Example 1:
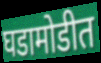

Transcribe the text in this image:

घडामोडीत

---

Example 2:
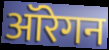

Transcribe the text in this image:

ऑरेगन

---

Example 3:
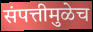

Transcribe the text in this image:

संपत्तीमुळेच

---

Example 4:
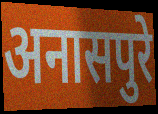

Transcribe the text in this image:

अनासपुरे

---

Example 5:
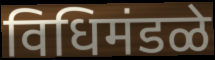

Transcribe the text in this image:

विधिमंडळे